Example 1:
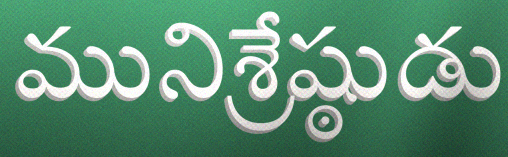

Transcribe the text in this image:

మునిశ్రేష్ఠుడు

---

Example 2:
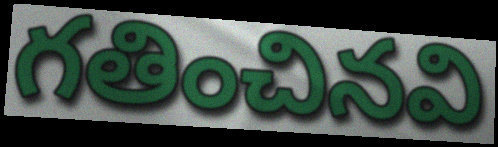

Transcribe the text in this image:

గతించినవి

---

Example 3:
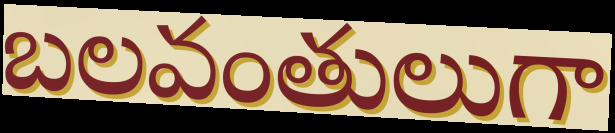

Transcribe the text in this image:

బలవంతులుగా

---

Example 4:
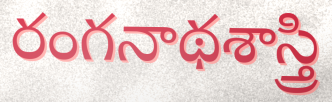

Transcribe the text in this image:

రంగనాథశాస్త్రి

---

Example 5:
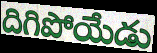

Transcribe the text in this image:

దిగిపోయేడు